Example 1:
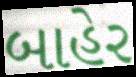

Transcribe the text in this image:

બાહેર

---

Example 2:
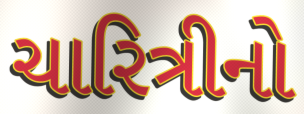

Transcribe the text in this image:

ચારિત્રીનો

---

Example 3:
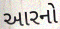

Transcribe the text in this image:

આરનો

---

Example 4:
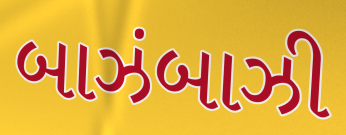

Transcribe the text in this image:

બાઝંબાઝી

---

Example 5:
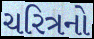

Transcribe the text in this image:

ચરિત્રનો